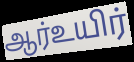
ஆர்உயிர்